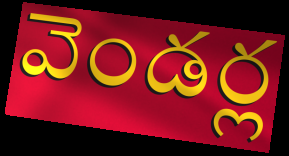
వెండర్ల